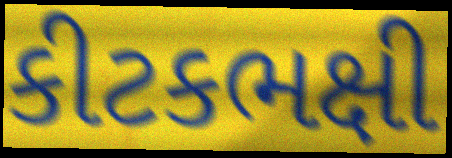
કીટકભક્ષી